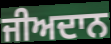
ਜੀਅਦਾਨ